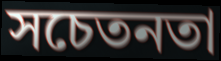
সচেতনতা